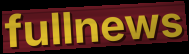
fullnews